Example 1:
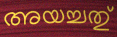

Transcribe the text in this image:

അയച്ചതു്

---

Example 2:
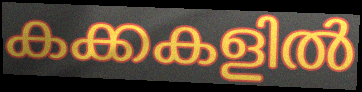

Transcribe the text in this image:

കക്കകളിൽ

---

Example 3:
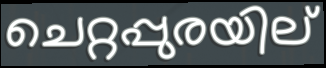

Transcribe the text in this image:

ചെറ്റപ്പുരയില്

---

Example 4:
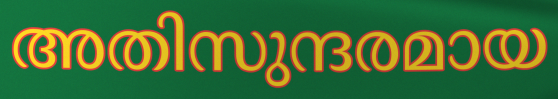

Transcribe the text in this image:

അതിസുന്ദരമായ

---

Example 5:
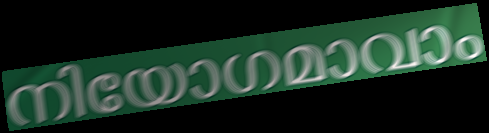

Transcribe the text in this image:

നിയോഗമാവാം